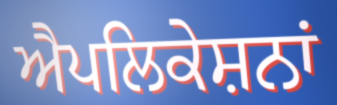
ਐਪਲਿਕੇਸ਼ਨਾਂ